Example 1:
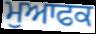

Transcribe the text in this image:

ਮੁਆਫਕ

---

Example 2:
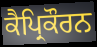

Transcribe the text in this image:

ਕੈਪ੍ਰਿਕੌਰਨ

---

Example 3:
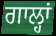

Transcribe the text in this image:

ਗਾਲ੍ਹਾਂ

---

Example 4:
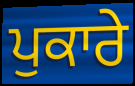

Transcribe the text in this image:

ਪੁਕਾਰੇ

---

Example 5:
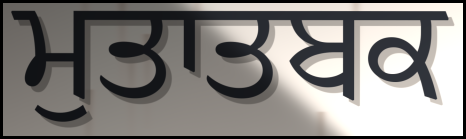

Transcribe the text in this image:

ਮੁਤਾਤਬਕ